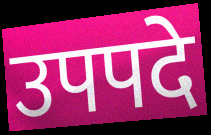
उपपदे